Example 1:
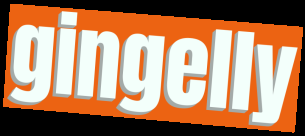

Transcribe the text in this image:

gingelly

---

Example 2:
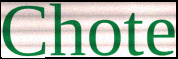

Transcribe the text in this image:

Chote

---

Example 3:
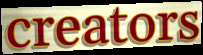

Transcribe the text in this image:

creators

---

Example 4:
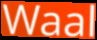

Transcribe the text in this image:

Waal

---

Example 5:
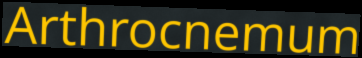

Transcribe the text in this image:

Arthrocnemum